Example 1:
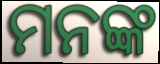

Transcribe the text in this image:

ମନଙ୍କ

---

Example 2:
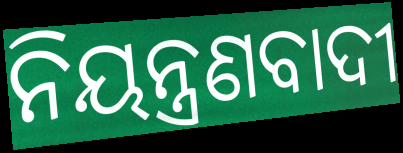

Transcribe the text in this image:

ନିୟନ୍ତ୍ରଣବାଦୀ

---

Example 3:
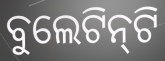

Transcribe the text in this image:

ବୁଲେଟିନ୍‍ଟି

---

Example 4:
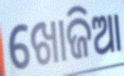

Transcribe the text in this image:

ଖୋଜିଆ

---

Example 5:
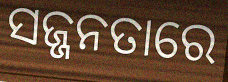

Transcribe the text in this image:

ସଜ୍ଜନତାରେ